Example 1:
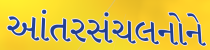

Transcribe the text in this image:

આંતરસંચલનોને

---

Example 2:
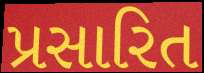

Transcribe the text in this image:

પ્રસારિત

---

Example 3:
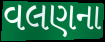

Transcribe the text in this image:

વલણના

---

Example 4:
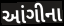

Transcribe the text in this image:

આંગીના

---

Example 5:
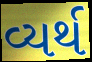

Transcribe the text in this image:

વ્યર્થ